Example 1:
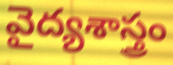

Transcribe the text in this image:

వైద్యశాస్త్రం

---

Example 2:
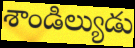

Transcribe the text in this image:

శాండిల్యుడు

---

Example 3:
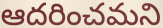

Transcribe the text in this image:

ఆదరించమని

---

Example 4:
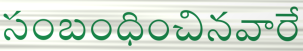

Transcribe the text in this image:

సంబంధించినవారే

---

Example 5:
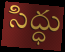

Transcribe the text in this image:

సిద్ధు